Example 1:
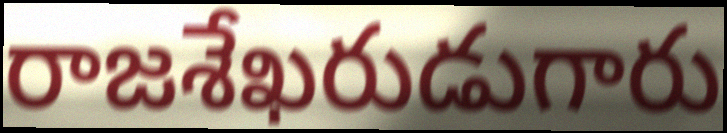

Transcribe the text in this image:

రాజశేఖరుడుగారు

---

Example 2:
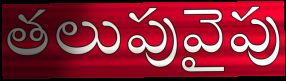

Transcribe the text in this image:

తలుపువైపు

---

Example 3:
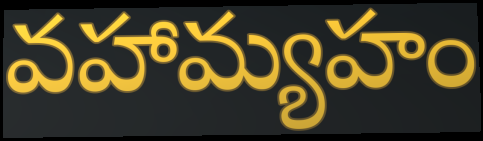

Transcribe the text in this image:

వహామ్యహం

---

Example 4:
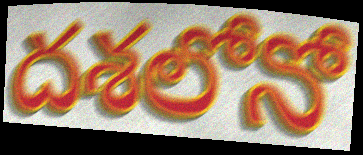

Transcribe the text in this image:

దశలోనో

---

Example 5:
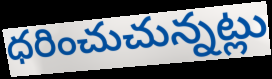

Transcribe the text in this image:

ధరించుచున్నట్లు